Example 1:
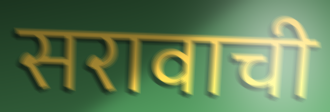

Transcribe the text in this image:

सरावाची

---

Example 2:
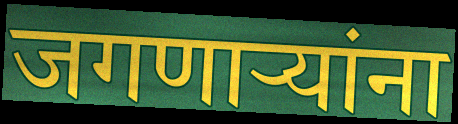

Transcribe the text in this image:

जगणाऱ्यांना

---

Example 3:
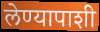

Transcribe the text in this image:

लेण्यापाशी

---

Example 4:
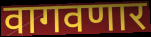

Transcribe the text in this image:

वागवणार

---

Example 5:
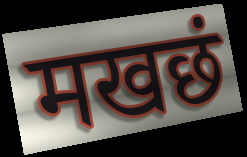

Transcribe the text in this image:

मखछं